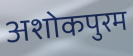
अशोकपुरम